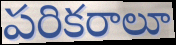
పరికరాలూ